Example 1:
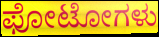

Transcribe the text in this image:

ಫೋಟೋಗಳು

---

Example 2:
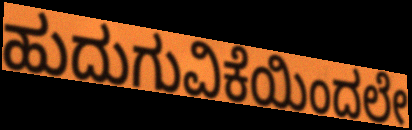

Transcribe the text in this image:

ಹುದುಗುವಿಕೆಯಿಂದಲೇ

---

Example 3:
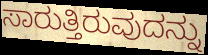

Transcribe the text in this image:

ಸಾರುತ್ತಿರುವುದನ್ನು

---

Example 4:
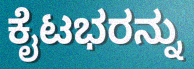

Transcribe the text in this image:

ಕೈಟಭರನ್ನು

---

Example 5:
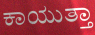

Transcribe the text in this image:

ಕಾಯುತ್ತಾ